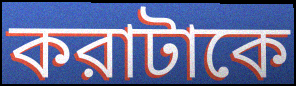
করাটাকে